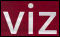
viz